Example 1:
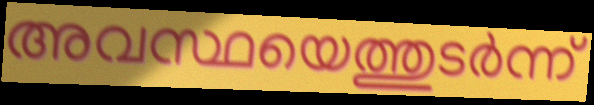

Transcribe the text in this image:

അവസ്ഥയെത്തുടർന്ന്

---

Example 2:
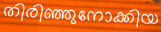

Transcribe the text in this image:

തിരിഞ്ഞുനോക്കിയ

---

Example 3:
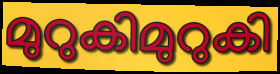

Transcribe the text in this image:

മുറുകിമുറുകി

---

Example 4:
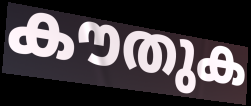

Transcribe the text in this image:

കൗതുക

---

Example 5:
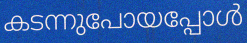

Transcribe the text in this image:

കടന്നുപോയപ്പോൾ